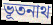
ভূতনাথ